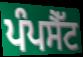
ਪੰਪਸੈੱਟ